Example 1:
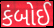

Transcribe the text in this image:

કંબોઈ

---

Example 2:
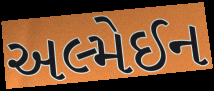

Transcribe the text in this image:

અલ્મેઈન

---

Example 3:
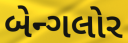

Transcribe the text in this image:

બેન્ગલોર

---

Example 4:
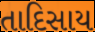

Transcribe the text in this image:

તાદિસાય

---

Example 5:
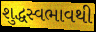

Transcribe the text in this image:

શુદ્ધસ્વભાવથી